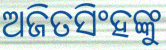
ଅଜିତସିଂହଙ୍କୁ